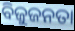
ବିଜୁଜନତା